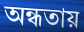
অন্ধতায়